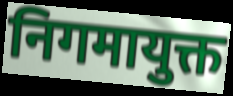
निगमायुक्त